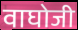
वाघोजी